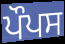
ਪੌਪਸ